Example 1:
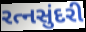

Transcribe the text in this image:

રત્નસુંદરી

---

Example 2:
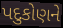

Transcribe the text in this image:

પદુકોણને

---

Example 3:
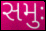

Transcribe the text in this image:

સમુઃ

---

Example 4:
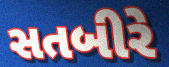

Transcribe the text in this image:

સતબીરે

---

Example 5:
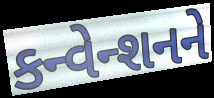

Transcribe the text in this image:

કન્વેન્શનને